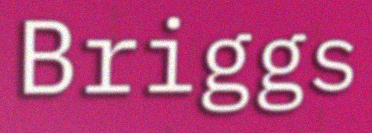
Briggs